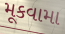
મૂકવામા